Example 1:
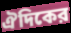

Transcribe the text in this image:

ঐদিকের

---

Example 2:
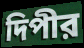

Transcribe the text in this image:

দিপীর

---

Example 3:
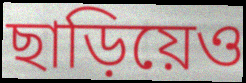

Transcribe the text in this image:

ছাড়িয়েও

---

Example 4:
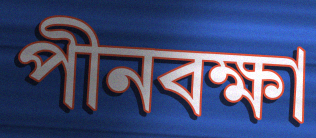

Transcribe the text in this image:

পীনবক্ষা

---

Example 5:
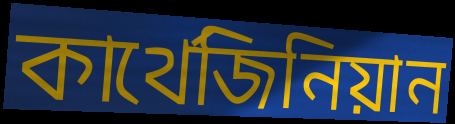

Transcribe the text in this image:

কার্থেজিনিয়ান